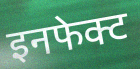
इनफेक्ट